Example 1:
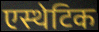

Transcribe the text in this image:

एस्थेटिक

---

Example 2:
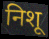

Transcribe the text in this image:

निशू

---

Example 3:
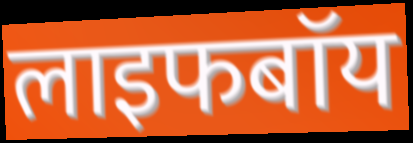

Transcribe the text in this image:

लाइफबॉय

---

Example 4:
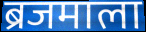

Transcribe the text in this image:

ब्रजमाला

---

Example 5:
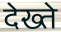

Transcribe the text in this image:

देख्ते